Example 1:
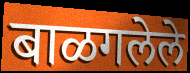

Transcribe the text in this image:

बाळगलेले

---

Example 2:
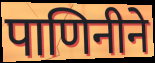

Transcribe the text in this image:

पाणिनीने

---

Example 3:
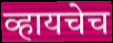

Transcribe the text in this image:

व्हायचेच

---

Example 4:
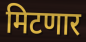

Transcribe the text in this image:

मिटणार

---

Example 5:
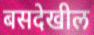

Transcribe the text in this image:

बसदेखील